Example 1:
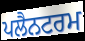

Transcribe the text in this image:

ਪਲੈਨਟਰਮ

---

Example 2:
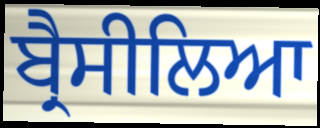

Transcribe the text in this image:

ਬ੍ਰੈਸੀਲਿਆ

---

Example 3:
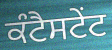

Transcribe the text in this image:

ਕੰਟੈਸਟੇਂਟ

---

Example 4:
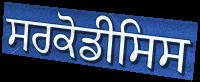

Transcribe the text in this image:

ਸਰਕੋਡੀਸਿਸ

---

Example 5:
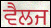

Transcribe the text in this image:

ਵੈਲਜ